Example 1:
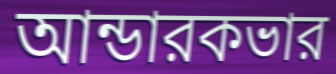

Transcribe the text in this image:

আন্ডারকভার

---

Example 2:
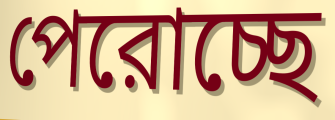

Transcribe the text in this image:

পেরোচ্ছে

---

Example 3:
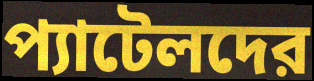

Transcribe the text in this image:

প্যাটেলদের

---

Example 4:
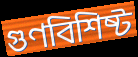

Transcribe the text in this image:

গুণবিশিষ্ট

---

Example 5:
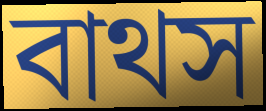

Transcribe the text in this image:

বাথস